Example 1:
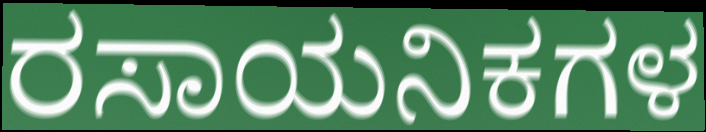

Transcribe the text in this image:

ರಸಾಯನಿಕಗಳ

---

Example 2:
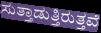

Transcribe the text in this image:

ಸುತ್ತಾಡುತ್ತಿರುತ್ತವೆ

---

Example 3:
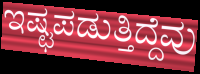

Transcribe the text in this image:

ಇಷ್ಟಪಡುತ್ತಿದ್ದೆವು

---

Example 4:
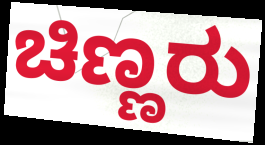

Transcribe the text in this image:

ಚಿಣ್ಣರು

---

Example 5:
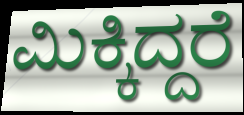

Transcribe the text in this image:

ಮಿಕ್ಕಿದ್ದರೆ